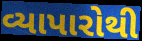
વ્યાપારોથી